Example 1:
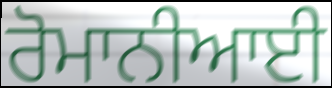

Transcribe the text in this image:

ਰੋਮਾਨੀਆਈ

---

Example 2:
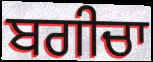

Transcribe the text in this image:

ਬਗੀਚਾ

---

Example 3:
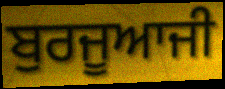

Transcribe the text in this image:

ਬੁਰਜੂਆਜੀ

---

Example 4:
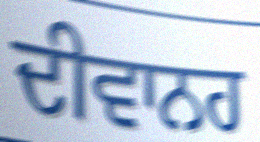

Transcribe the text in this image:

ਦੀਵਾਨਹ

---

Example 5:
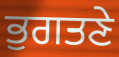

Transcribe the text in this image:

ਭੁਗਤਣੇ